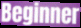
Beginner